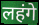
लहंगे